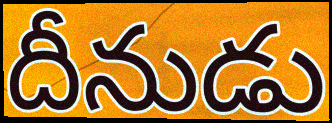
దీనుడు